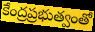
కేంద్రప్రభుత్వంతో